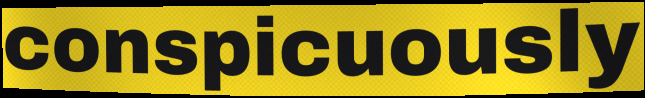
conspicuously